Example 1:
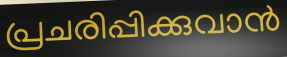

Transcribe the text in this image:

പ്രചരിപ്പിക്കുവാൻ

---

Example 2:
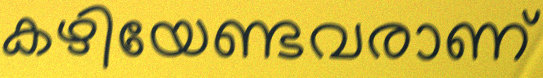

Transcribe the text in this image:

കഴിയേണ്ടവരാണ്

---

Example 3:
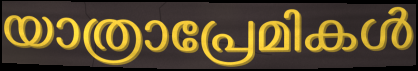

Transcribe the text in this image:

യാത്രാപ്രേമികൾ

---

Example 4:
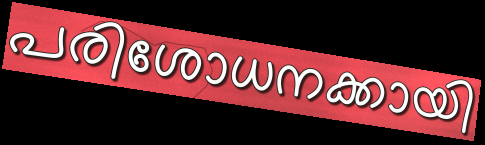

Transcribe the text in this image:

പരിശോധനക്കായി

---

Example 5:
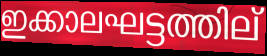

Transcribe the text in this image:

ഇക്കാലഘട്ടത്തില്